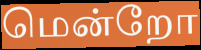
மென்றோ